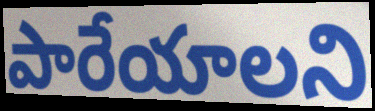
పారేయాలని